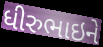
ધીરુભાઇને